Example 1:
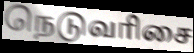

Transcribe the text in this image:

நெடுவரிசை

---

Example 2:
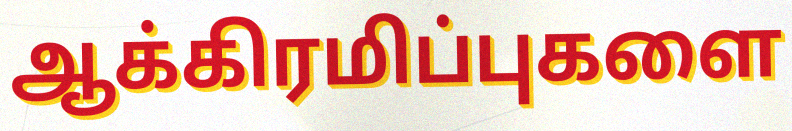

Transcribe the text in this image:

ஆக்கிரமிப்புகளை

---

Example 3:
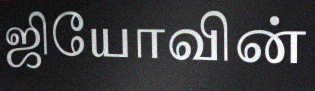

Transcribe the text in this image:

ஜியோவின்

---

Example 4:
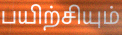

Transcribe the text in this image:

பயிற்சியும்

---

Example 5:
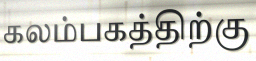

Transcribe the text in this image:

கலம்பகத்திற்கு